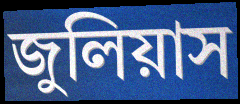
জুলিয়াস